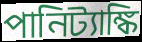
পানিট্যাঙ্কি